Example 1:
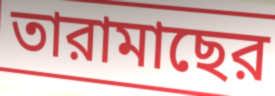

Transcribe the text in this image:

তারামাছের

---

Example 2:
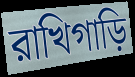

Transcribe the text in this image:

রাখিগাড়ি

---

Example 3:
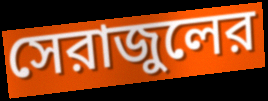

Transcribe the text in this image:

সেরাজুলের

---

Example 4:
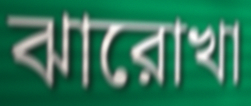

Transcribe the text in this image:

ঝারোখা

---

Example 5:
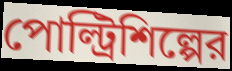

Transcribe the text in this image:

পোল্ট্রিশিল্পের